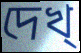
দেখ্